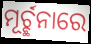
ମୂର୍ଚ୍ଛନାରେ